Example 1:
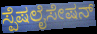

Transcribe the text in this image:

ಸ್ಪೆಷಲೈಸೇಷನ್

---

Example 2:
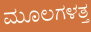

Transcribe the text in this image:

ಮೂಲಗಳತ್ತ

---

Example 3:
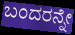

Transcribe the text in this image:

ಬಂದರನ್ನೇ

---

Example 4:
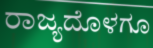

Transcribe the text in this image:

ರಾಜ್ಯದೊಳಗೂ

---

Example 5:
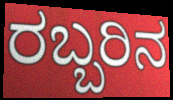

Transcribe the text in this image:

ರಬ್ಬರಿನ